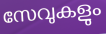
സേവുകളും